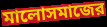
মালোসমাজের